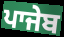
ਪਾਜੇਬ